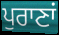
ਪੁਰਾਣਾਂ